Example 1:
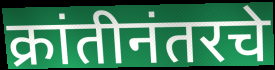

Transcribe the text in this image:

क्रांतीनंतरचे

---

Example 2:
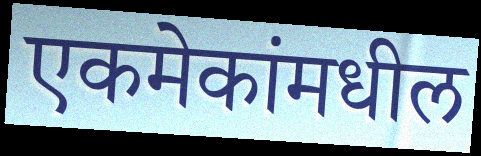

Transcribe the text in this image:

एकमेकांमधील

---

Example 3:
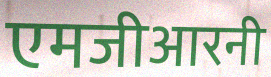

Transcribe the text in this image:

एमजीआरनी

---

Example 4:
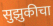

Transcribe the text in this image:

सुझुकीचा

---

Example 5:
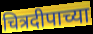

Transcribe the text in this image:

चित्रदीपाच्या